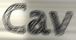
Cav